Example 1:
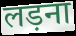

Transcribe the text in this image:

लड़ना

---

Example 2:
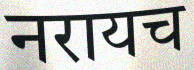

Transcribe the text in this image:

नरायच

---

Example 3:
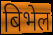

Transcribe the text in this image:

बिभेल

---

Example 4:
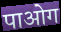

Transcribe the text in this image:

पाओग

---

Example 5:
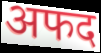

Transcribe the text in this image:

अफद